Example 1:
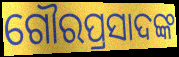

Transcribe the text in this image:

ଗୌରପ୍ରସାଦଙ୍କ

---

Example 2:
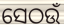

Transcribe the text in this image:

ସେଠଉଁ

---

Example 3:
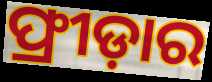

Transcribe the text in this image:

ଫ୍ରୀଡ଼ାର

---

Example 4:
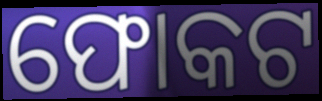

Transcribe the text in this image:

ଫୋକଟ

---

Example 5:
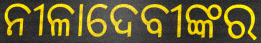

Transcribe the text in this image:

ନୀଳାଦେବୀଙ୍କର